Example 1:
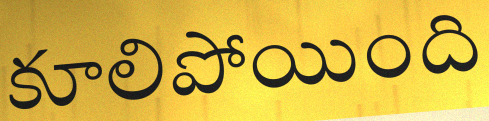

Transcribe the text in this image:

కూలిపోయింది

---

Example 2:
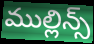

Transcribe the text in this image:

ముల్లిన్స్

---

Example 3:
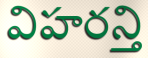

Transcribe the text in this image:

విహరన్తి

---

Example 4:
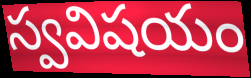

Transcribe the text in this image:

స్వవిషయం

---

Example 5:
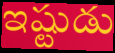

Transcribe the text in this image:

ఇష్టుడు